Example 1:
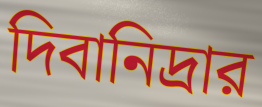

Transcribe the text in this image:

দিবানিদ্রার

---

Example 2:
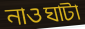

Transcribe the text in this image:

নাওঘাটা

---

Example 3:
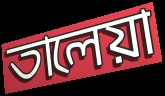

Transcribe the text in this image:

তালেয়া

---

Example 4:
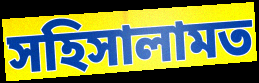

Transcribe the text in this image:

সহিসালামত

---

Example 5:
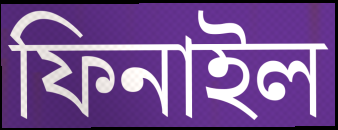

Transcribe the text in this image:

ফিনাইল